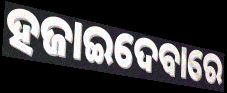
ହଜାଇଦେବାରେ